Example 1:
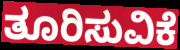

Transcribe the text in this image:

ತೂರಿಸುವಿಕೆ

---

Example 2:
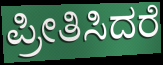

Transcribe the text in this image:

ಪ್ರೀತಿಸಿದರೆ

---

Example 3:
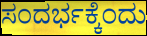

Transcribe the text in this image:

ಸಂದರ್ಭಕ್ಕೆಂದು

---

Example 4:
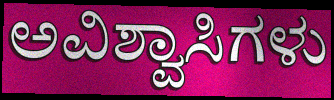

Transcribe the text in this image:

ಅವಿಶ್ವಾಸಿಗಳು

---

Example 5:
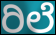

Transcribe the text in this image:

ರಿಲೆ